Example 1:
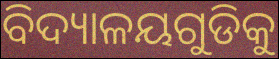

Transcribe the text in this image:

ବିଦ୍ୟାଳୟଗୁଡିକୁ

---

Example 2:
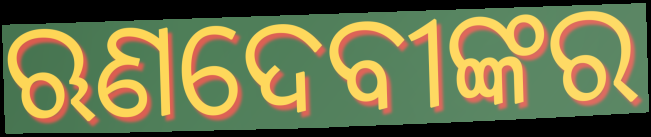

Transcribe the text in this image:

ଋଣଦେବୀଙ୍କର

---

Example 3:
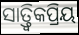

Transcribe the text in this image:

ସାତ୍ତ୍ଵିକପ୍ରିୟ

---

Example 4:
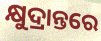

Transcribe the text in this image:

କ୍ଷୁଦ୍ରାନ୍ତରେ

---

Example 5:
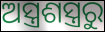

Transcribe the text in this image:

ଅସ୍ତ୍ରଶସ୍ତ୍ରରୁ